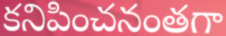
కనిపించనంతగా